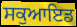
ਸਕੁਆਇਡ